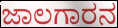
ಜಾಲಗಾರನ